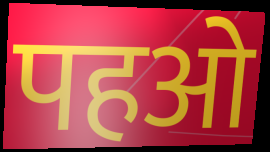
पहओ